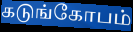
கடுங்கோபம்